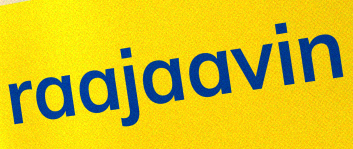
raajaavin